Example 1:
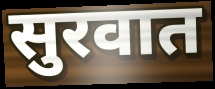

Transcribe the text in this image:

सुरवात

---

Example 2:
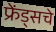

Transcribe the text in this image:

फ्रेंड्सचे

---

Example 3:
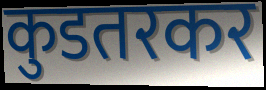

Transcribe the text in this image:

कुडतरकर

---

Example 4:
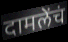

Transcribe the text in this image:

दामलेंचं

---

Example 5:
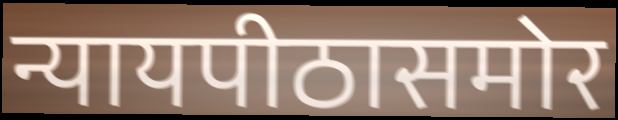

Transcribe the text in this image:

न्यायपीठासमोर